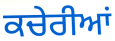
ਕਚੇਰੀਆਂ